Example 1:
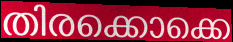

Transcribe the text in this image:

തിരക്കൊക്കെ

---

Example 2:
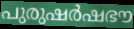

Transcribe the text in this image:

പുരുഷർഷഭൗ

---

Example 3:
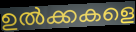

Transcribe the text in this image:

ഉൽക്കകളെ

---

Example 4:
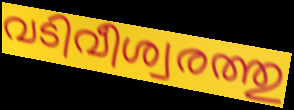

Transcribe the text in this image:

വടിവീശ്വരത്തു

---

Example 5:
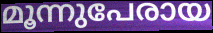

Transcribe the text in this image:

മൂന്നുപേരായ